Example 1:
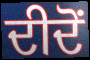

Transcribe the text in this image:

ਦੀਦੋਂ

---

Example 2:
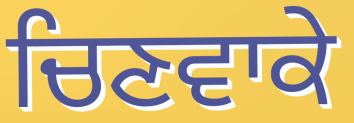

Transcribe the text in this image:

ਚਿਣਵਾਕੇ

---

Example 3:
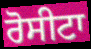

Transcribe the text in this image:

ਰੋਸੀਟਾ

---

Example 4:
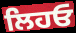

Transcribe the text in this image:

ਲਿਹਓ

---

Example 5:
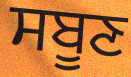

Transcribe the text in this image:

ਸਬੂਣ